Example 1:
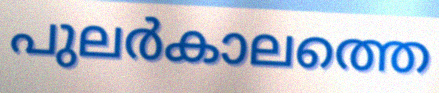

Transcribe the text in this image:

പുലർകാലത്തെ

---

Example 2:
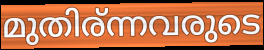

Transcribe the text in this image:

മുതിര്ന്നവരുടെ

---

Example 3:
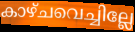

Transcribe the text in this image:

കാഴ്ചവെച്ചില്ലേ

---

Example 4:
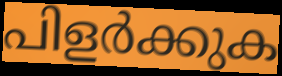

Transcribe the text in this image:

പിളർക്കുക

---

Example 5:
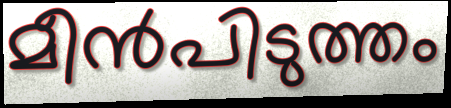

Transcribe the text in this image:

മീൻപിടുത്തം